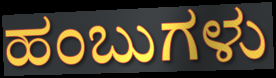
ಹಂಬುಗಳು